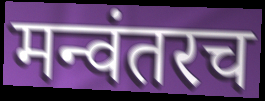
मन्वंतरच